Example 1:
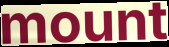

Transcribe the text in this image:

mount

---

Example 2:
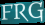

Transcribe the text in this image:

FRG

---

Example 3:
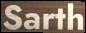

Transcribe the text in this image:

Sarth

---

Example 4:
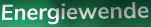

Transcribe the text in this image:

Energiewende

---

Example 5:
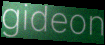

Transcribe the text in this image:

gideon